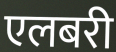
एलबरी